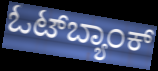
ಓಟ್‌ಬ್ಯಾಂಕ್